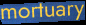
mortuary